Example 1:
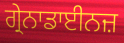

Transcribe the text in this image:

ਗ੍ਰੇਨਾਡਾਈਨਜ਼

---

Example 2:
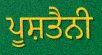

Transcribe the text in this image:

ਪੂਸ਼ਤੈਨੀ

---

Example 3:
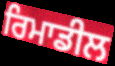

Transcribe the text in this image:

ਰਿਮਾਡੀਲ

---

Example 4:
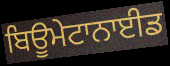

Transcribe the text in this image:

ਬਿਊਮੇਟਾਨਾਈਡ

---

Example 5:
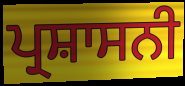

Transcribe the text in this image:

ਪ੍ਰਸ਼ਾਸਨੀ